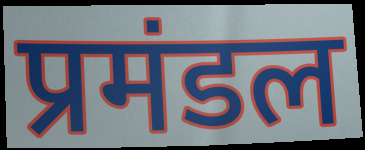
प्रमंडल